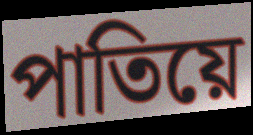
পাতিয়ে